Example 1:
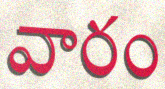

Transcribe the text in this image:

వారం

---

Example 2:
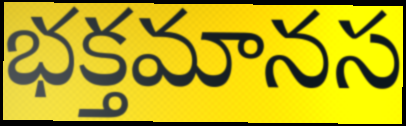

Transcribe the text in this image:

భక్తమానస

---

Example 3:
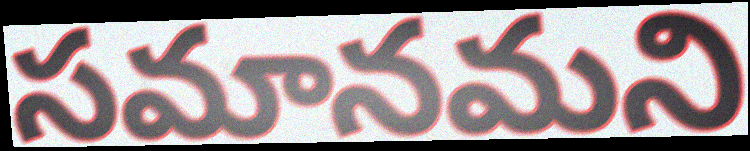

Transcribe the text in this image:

సమానమని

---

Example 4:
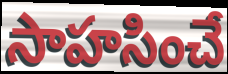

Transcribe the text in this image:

సాహసించే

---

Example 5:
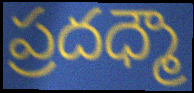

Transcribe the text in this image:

ప్రదధ్మౌ